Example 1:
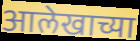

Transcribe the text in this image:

आलेखाच्या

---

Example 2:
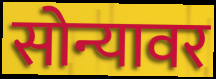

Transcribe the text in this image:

सोन्यावर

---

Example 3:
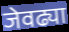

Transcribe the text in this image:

जेवढ्या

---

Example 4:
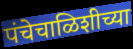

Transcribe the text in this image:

पंचेचाळिशीच्या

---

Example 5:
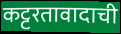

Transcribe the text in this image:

कट्टरतावादाची